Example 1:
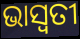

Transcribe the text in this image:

ଭାସ୍ଵତୀ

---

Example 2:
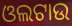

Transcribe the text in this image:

ଓଲଟାଉ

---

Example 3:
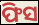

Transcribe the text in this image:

ଫିସ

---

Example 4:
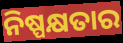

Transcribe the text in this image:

ନିଷ୍ପକ୍ଷତାର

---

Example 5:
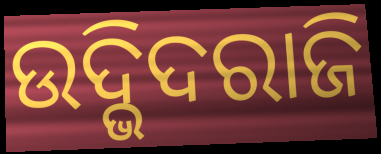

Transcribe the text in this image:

ଉଦ୍ଭିଦରାଜି